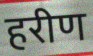
हरीण